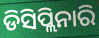
ଡିସିପ୍ଲିନାରି